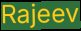
Rajeev